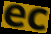
ec